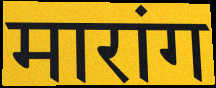
मारांग